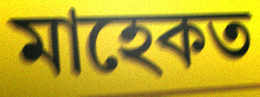
মাহেকত